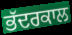
ਭੱਦਰਕਾਲ